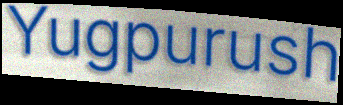
Yugpurush